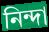
নিন্দা